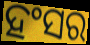
ହଂସର